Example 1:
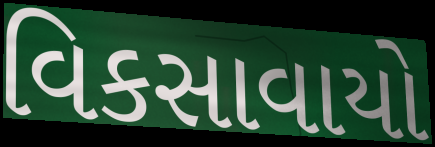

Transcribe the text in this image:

વિકસાવાયો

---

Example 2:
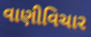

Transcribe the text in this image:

વાણીવિચાર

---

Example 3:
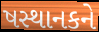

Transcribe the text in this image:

ષસ્થાનકને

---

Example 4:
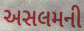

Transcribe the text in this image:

અસલમની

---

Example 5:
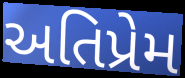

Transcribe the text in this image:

અતિપ્રેમ